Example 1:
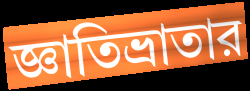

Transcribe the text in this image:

জ্ঞাতিভ্রাতার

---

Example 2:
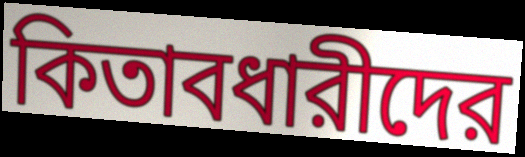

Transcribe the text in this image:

কিতাবধারীদের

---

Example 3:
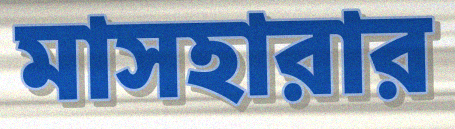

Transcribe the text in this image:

মাসহারার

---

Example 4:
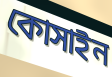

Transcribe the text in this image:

কোসাইন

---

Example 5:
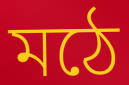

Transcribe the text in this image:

মঠে